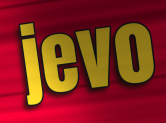
jevo